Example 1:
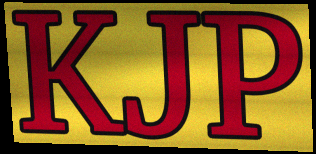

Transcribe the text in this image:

KJP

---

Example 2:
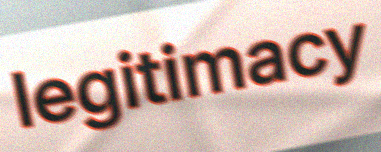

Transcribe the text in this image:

legitimacy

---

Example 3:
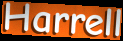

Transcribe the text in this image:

Harrell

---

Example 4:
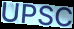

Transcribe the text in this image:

UPSC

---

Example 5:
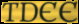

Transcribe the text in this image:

TDEE